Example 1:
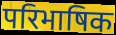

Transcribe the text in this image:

परिभाषिक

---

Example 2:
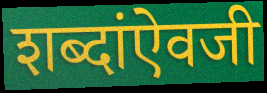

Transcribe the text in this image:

शब्दांऐवजी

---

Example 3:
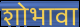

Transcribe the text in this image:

शोभावा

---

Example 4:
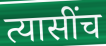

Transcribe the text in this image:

त्यासींच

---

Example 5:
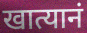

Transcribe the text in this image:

खात्यानं